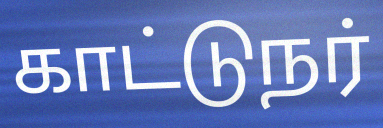
காட்டுநர்